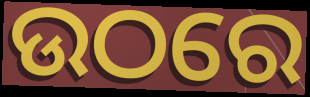
ଉଠରେ